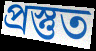
প্রস্তুত